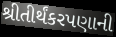
શ્રીતીર્થંકરપણાની